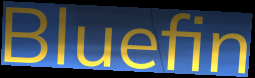
Bluefin